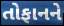
તોફાનને